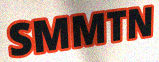
SMMTN